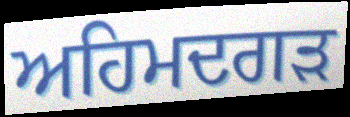
ਅਹਿਮਦਗੜ